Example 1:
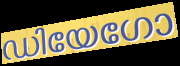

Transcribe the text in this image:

ഡിയേഗോ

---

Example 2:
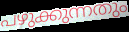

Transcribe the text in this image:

പഴുക്കുന്നതും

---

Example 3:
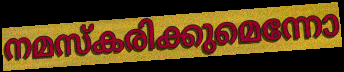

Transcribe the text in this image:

നമസ്കരിക്കുമെന്നോ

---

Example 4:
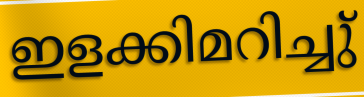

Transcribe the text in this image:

ഇളക്കിമറിച്ചു്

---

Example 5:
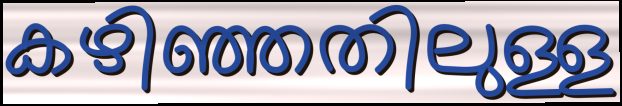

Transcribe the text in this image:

കഴിഞ്ഞതിലുള്ള